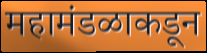
महामंडळाकडून